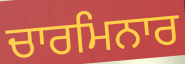
ਚਾਰਮਿਨਾਰ